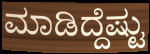
ಮಾಡಿದ್ದೆಷ್ಟು